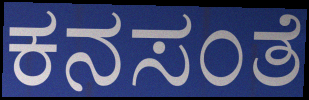
ಕನಸಂತೆ